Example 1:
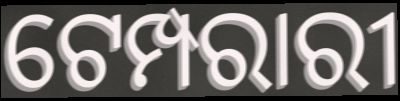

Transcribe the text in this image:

ଟେମ୍ପରାରୀ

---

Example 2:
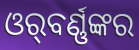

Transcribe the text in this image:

ଓର୍‌ବର୍ଣ୍ଣଙ୍କର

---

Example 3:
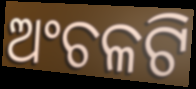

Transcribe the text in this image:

ଅଂଚଳଟି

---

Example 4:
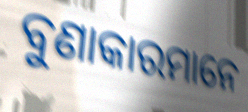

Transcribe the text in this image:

ବୁଣାକାରମାନେ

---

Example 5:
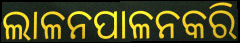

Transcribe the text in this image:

ଲାଳନପାଳନକରି